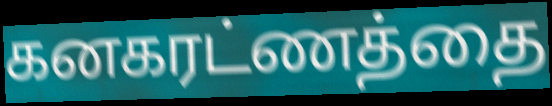
கனகரட்ணத்தை